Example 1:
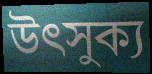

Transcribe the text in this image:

উৎসুক্য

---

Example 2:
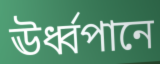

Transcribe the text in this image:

ঊর্ধ্বপানে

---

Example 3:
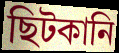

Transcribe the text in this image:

ছিটকানি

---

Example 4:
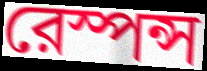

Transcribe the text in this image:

রেস্পন্স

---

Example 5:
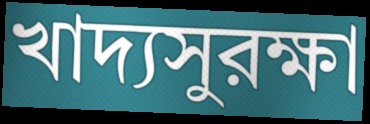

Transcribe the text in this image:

খাদ্যসুরক্ষা